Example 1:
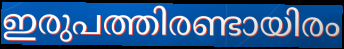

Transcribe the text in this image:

ഇരുപത്തിരണ്ടായിരം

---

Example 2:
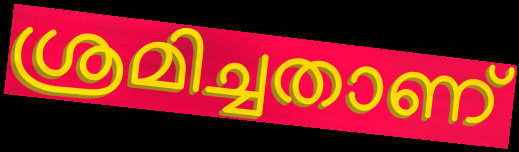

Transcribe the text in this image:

ശ്രമിച്ചതാണ്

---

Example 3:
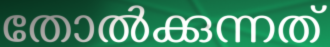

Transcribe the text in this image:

തോൽക്കുന്നത്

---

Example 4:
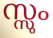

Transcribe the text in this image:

സ്സും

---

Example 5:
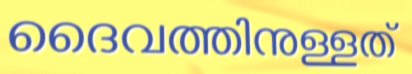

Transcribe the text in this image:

ദൈവത്തിനുള്ളത്